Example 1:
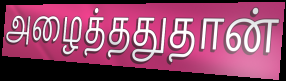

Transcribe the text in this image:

அழைத்ததுதான்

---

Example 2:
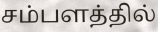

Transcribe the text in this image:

சம்பளத்தில்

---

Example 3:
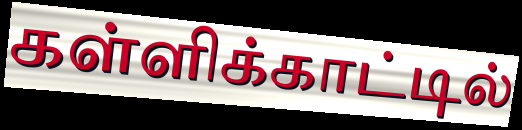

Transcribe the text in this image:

கள்ளிக்காட்டில்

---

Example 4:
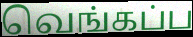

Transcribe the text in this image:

வெங்கப்ப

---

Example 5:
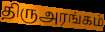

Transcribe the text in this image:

திருஅரங்கம்